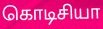
கொடிசியா